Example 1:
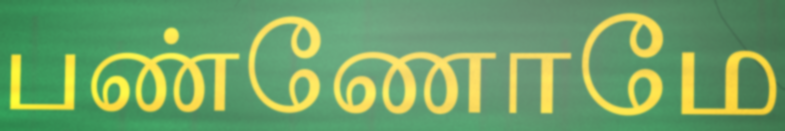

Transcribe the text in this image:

பண்ணோமே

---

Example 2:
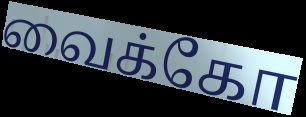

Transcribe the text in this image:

வைக்கோ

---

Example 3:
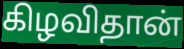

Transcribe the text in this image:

கிழவிதான்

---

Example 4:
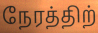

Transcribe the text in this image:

நேரத்திற்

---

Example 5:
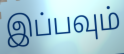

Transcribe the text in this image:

இப்பவும்